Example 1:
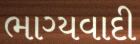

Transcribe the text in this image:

ભાગ્યવાદી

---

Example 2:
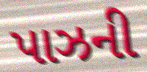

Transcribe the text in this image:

પાઝની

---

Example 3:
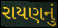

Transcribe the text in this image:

રાયણનું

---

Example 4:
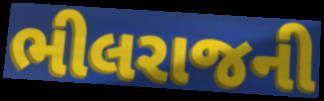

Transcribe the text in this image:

ભીલરાજની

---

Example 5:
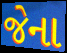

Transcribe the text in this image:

જેના